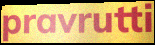
pravrutti